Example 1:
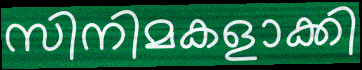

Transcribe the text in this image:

സിനിമകളാക്കി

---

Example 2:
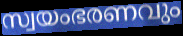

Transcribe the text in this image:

സ്വയംഭരണവും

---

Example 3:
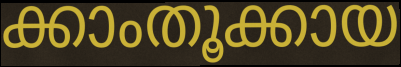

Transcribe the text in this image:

ക്കാംതൂക്കായ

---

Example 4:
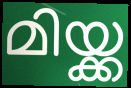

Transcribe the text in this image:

മിയ്ക്ക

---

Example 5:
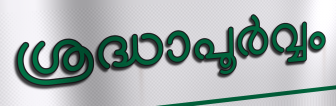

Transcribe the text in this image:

ശ്രദ്ധാപൂർവ്വം